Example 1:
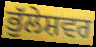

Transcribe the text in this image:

ਭੁੱਲੇਸ਼ਵਰ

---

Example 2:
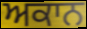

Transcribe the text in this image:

ਅਕਾਨ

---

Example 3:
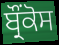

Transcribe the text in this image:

ਬ੍ਰੌਂਕੋਸ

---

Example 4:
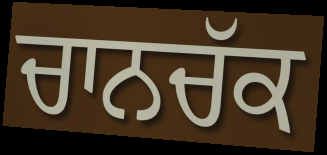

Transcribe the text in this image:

ਚਾਨਚੱਕ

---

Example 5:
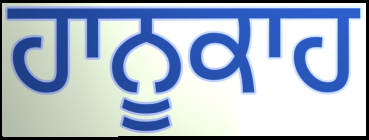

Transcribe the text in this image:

ਹਾਨੂਕਾਹ